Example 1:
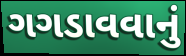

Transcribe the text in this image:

ગગડાવવાનું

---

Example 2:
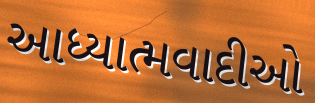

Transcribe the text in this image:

આધ્યાત્મવાદીઓ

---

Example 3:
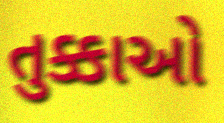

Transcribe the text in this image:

તુક્કાઓ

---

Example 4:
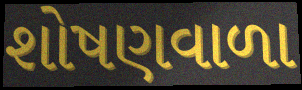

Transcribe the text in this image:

શોષણવાળા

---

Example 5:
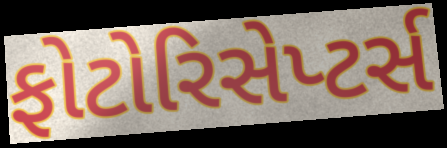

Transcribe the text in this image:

ફોટોરિસેપ્ટર્સ